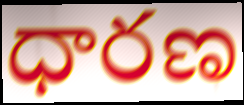
ధారణ